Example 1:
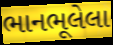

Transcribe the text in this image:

ભાનભૂલેલા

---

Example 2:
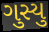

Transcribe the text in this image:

ગુસ્યુ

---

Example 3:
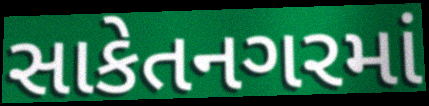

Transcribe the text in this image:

સાકેતનગરમાં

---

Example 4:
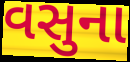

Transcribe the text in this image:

વસુના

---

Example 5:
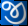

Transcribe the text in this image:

જી